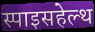
स्पाइसहेल्थ